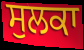
ਸੁਲਕਾ